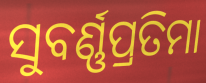
ସୁବର୍ଣ୍ଣପ୍ରତିମା